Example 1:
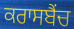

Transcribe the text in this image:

ਕਰਾਸਬੈਂਚ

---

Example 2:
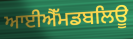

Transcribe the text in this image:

ਆਈਐੱਮਡਬਲਿਊ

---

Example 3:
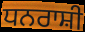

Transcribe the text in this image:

ਧਨਰਾਸ਼ੀ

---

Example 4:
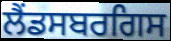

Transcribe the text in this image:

ਲੈਂਡਸਬਰਗਿਸ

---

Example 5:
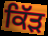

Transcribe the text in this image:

ਕਿੱੜ